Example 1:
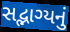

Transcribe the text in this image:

સદ્ભાગ્યનું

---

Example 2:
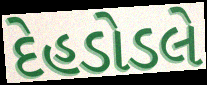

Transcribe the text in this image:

દેહડોડલે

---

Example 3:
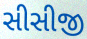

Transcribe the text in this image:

સીસીજી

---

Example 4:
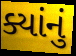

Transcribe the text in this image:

ક્યાંનું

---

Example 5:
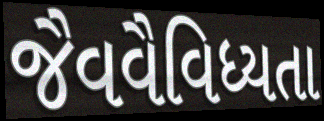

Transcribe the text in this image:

જૈવવૈવિધ્યતા